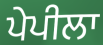
ਪੇਪੀਲਾ